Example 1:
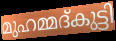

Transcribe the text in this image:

മുഹമ്മദ്കുട്ടി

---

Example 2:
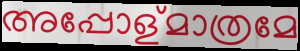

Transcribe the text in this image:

അപ്പോള്മാത്രമേ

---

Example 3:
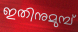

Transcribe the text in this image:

ഇതിനുമുമ്പ്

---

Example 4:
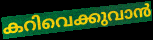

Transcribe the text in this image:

കറിവെക്കുവാൻ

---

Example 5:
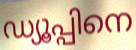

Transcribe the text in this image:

ഡ്യൂപ്പിനെ